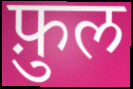
फ़ुल